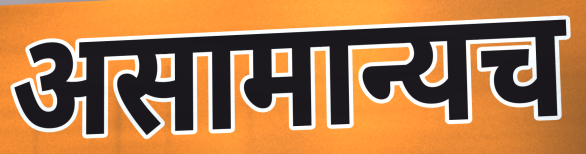
असामान्यच